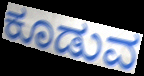
ಕೂಡುವ